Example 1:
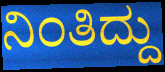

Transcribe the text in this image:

ನಿಂತಿದ್ದು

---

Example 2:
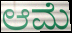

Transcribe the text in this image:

ಆಮೆ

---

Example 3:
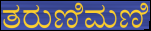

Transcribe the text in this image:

ತರುಣಿಮಣಿ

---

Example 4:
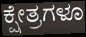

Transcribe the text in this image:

ಕ್ಷೇತ್ರಗಳೂ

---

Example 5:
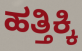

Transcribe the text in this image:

ಹತ್ತಿಕ್ಕಿ